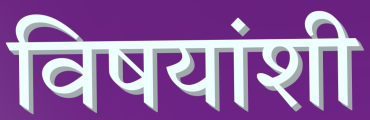
विषयांशी